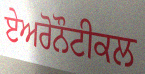
ਏਅਰੋਨੌਟੀਕਲ